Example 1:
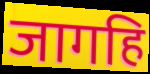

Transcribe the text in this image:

जागहि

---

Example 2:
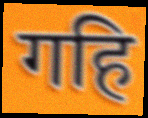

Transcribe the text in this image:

गहि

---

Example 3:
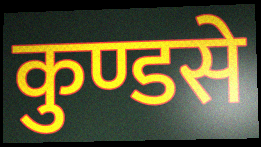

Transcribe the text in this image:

कुण्डसे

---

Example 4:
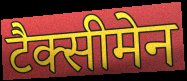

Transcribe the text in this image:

टैक्सीमेन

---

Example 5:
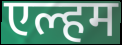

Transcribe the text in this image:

एल्हम